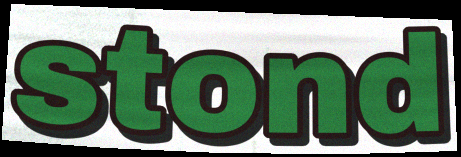
stond